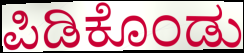
ಪಿಡಿಕೊಂಡು